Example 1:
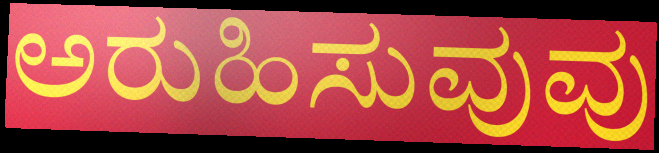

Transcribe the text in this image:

ಅರುಹಿಸುವುವು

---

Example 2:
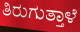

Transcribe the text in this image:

ತಿರುಗುತ್ತಾಳೆ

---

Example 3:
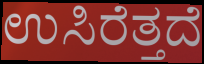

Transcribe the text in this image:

ಉಸಿರೆತ್ತದೆ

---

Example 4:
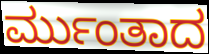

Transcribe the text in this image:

ರ್ಮುಂತಾದ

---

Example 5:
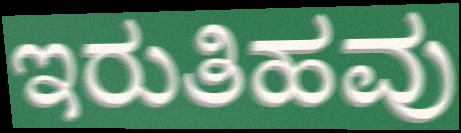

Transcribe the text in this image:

ಇರುತಿಹವು